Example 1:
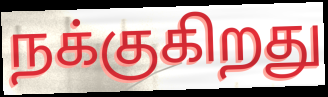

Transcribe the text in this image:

நக்குகிறது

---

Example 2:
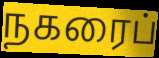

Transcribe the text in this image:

நகரைப்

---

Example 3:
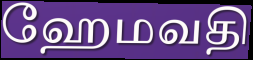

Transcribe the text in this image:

ஹேமவதி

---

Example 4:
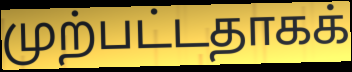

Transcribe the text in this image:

முற்பட்டதாகக்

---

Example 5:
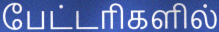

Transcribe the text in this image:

பேட்டரிகளில்